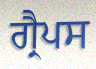
ਗ੍ਰੈਪਸ